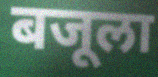
बजूला